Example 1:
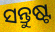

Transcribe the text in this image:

ସନ୍ତୁଷ୍ଟ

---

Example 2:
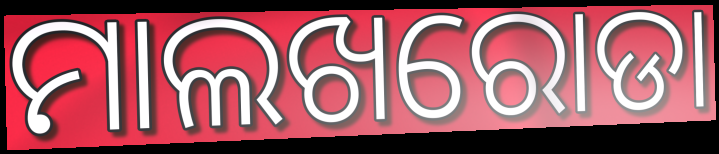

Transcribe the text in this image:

ମାଲଖରୋଡା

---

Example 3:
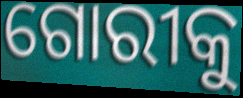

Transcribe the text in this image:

ଗୋରୀକୁ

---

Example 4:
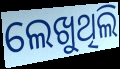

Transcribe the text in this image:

ଲେଖୁଥିଲି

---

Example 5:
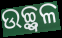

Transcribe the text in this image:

ଉଚ୍ଛ୍ଵଳ